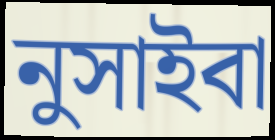
নুসাইবা